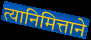
त्यानिमित्ताने